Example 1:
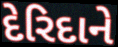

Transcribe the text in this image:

દેરિદાને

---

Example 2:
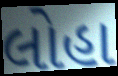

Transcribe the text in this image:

લોહા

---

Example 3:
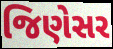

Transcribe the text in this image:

જિણેસર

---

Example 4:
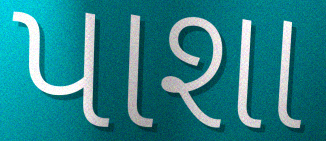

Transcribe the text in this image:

પાશા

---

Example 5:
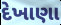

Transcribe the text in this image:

દેખાણા